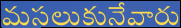
మసలుకునేవారు